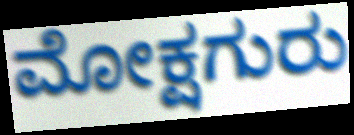
ಮೋಕ್ಷಗುರು